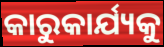
କାରୁକାର୍ଯ୍ୟକୁ